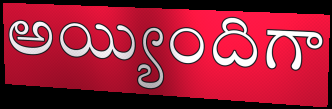
అయ్యిందిగా